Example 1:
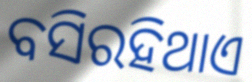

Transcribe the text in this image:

ବସିରହିଥାଏ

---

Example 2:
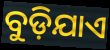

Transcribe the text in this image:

ବୁଡ଼ିଯାଏ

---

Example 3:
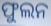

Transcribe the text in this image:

ଫୁଲନ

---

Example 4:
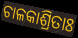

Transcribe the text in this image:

ଚାଳକାଶ୍ରିତାଃ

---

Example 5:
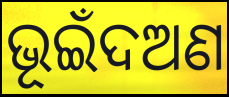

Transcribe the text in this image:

ଭୂଇଁଦଅଣ